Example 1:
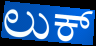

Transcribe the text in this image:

ಲುಕ್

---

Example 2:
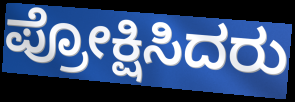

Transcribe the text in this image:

ಪ್ರೋಕ್ಷಿಸಿದರು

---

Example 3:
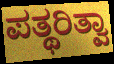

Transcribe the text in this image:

ಪತ್ಥರಿತ್ವಾ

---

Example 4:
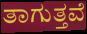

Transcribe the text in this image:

ತಾಗುತ್ತವೆ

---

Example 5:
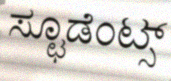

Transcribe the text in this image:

ಸ್ಟೂಡೆಂಟ್ಸ್